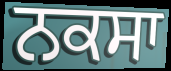
ਨਕਸਾ